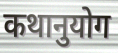
कथानुयोग